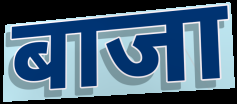
बाजा